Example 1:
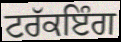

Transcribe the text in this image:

ਟਰੱਕਇੰਗ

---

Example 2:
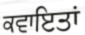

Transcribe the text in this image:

ਕਵਾਇਤਾਂ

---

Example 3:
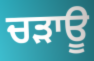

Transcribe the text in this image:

ਚੜਾਊ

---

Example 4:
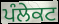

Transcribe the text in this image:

ਪੰਲੇਕਟ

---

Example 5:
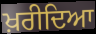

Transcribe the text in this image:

ਖ਼ਰੀਦਿਆ